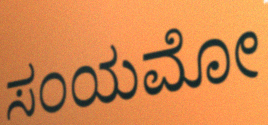
ಸಂಯಮೋ